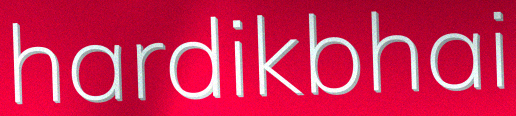
hardikbhai